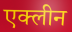
एक्लीन